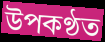
উপকণ্ঠত